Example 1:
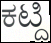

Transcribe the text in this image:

ಕಟ್ದಿ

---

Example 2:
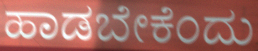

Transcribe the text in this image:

ಹಾಡಬೇಕೆಂದು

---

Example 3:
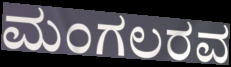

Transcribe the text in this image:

ಮಂಗಲರವ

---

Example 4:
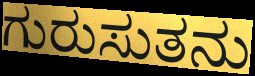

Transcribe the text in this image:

ಗುರುಸುತನು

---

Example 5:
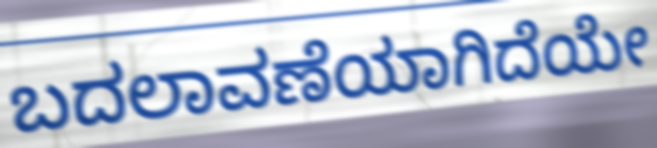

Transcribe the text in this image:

ಬದಲಾವಣೆಯಾಗಿದೆಯೇ